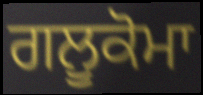
ਗਲੂਕੋਮਾ